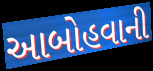
આબોહવાની